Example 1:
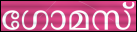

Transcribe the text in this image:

ഗോമസ്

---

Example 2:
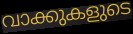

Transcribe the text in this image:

വാക്കുകളുടെ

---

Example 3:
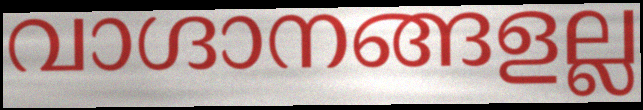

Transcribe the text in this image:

വാഗ്ദാനങ്ങളല്ല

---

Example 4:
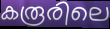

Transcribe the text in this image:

കരൂരിലെ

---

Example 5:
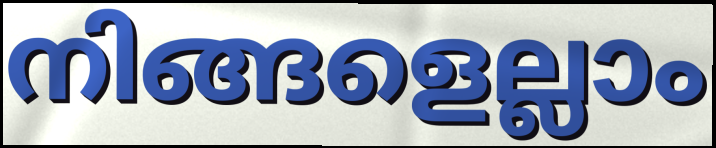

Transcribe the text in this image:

നിങ്ങളെല്ലാം